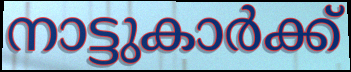
നാട്ടുകാർക്ക്